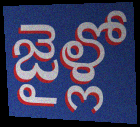
జైళ్లో